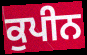
ਕੁਪੀਨ